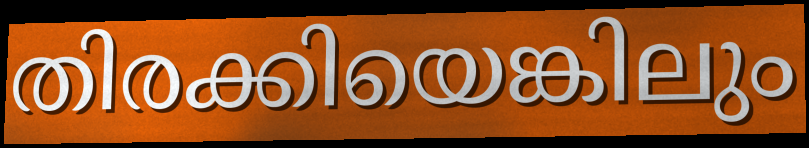
തിരക്കിയെങ്കിലും